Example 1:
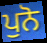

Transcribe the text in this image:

ਪੁਨੋ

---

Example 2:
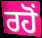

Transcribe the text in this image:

ਰਹੋਂ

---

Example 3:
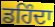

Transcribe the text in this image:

ਡਹਿੰਦਾ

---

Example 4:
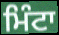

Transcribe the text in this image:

ਮਿੰਟਾ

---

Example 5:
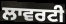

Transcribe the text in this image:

ਲਾਵਰਟੀ